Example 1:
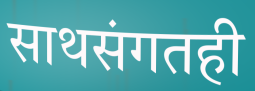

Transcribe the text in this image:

साथसंगतही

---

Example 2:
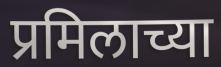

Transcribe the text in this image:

प्रमिलाच्या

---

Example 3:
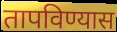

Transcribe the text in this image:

तापविण्यास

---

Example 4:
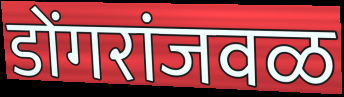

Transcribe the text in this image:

डोंगरांजवळ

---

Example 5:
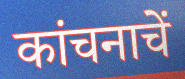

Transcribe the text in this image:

कांचनाचें